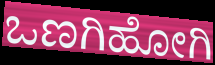
ಒಣಗಿಹೋಗಿ